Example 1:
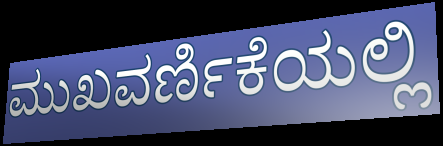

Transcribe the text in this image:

ಮುಖವರ್ಣಿಕೆಯಲ್ಲಿ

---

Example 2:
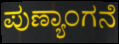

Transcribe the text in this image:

ಪುಣ್ಯಾಂಗನೆ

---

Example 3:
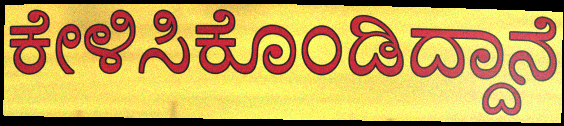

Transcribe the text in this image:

ಕೇಳಿಸಿಕೊಂಡಿದ್ದಾನೆ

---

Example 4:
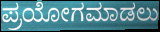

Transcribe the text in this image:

ಪ್ರಯೋಗಮಾಡಲು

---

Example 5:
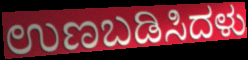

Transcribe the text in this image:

ಉಣಬಡಿಸಿದಳು